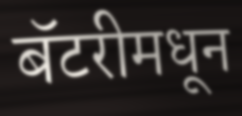
बॅटरीमधून